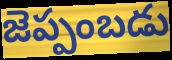
జెప్పంబడు